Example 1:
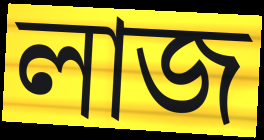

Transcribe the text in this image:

লাজ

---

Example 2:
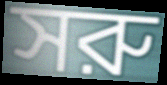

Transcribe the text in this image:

সৰু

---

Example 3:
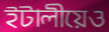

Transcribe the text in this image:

ইটালীয়েও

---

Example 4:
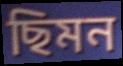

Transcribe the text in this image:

ছিমন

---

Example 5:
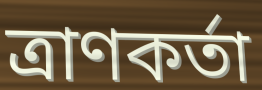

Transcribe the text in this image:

ত্ৰাণকৰ্তা